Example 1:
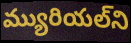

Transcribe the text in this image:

మ్యురియల్‌ని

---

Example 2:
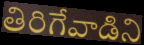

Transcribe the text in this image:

తిరిగేవాడిని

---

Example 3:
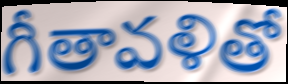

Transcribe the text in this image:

గీతావళితో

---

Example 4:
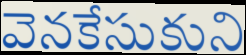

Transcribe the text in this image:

వెనకేసుకుని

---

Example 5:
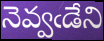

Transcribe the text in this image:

నెవ్వఁడేని